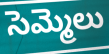
సెమ్మెలు